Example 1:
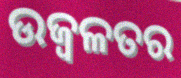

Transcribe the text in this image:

ଉଜ୍ବଳତର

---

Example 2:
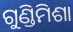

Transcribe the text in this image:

ଗୁଣ୍ଡିମିଶା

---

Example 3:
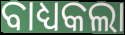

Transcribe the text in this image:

ବାଧ୍ୟକଲା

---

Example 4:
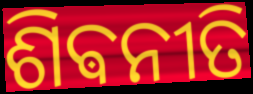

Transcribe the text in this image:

ଶିଵନୀତି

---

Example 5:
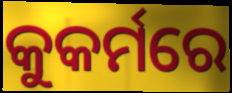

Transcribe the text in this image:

କୁକର୍ମରେ